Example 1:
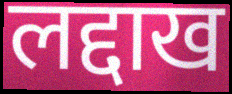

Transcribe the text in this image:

लद्दाख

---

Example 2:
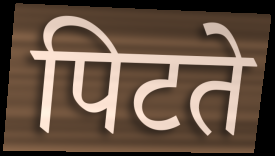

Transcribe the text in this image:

पिटते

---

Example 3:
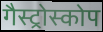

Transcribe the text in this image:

गैस्ट्रोस्कोप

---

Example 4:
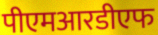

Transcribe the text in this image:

पीएमआरडीएफ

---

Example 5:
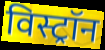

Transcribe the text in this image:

विस्ट्रॉन